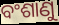
ବଂଶାଣୁ